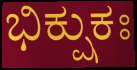
ಭಿಕ್ಷುಕಃ